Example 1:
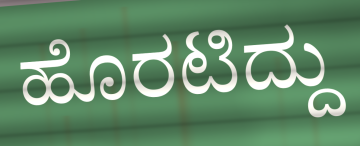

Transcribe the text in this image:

ಹೊರಟಿದ್ದು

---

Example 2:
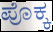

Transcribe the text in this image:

ಪೊಕ್ಕ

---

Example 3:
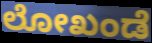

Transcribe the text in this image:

ಲೋಖಂಡೆ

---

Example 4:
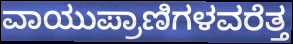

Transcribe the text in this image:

ವಾಯುಪ್ರಾಣಿಗಳವರೆತ್ತ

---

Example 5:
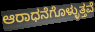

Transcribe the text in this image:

ಆರಾಧನೆಗೊಳ್ಳುತ್ತವೆ